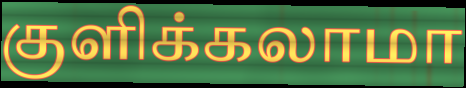
குளிக்கலாமா